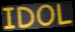
IDOL